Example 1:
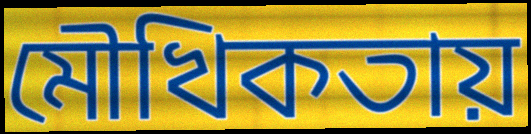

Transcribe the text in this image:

মৌখিকতায়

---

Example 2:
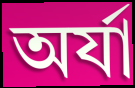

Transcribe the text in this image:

অর্যা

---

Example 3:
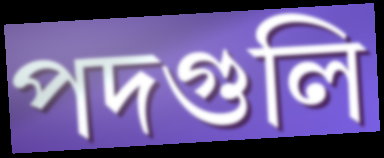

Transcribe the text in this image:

পদগুলি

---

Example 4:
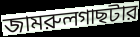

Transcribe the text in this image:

জামরুলগাছটার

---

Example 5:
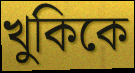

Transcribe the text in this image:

খুকিকে